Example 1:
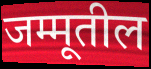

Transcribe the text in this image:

जम्मूतील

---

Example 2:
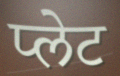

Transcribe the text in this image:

प्लेट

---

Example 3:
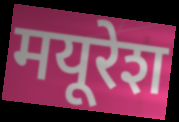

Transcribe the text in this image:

मयूरेश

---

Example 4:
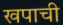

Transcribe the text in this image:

खपाची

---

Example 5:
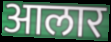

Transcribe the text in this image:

आलार